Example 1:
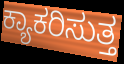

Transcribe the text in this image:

ಕ್ಯಾಕರಿಸುತ್ತ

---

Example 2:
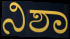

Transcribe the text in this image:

ನಿಶಾ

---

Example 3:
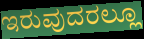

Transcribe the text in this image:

ಇರುವುದರಲ್ಲೂ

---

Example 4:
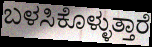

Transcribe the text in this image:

ಬಳಸಿಕೊಳ್ಳುತ್ತಾರೆ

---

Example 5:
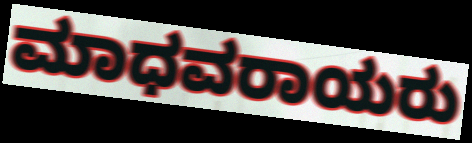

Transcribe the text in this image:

ಮಾಧವರಾಯರು